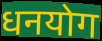
धनयोग